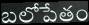
బలోపేతం